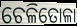
ଚେଳିତୋଳା